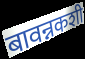
बावन्नकशी